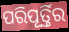
ପରିପୂର୍ତ୍ତିର